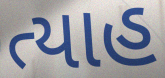
ત્યાહ